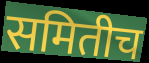
समितीच